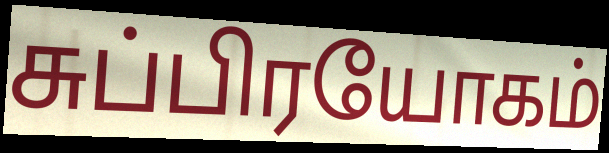
சுப்பிரயோகம்